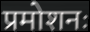
प्रमोशनः